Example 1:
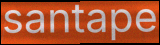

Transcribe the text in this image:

santape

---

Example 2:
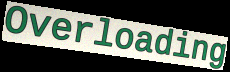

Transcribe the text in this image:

Overloading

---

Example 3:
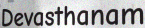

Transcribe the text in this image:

Devasthanam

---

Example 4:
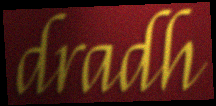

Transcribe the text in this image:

dradh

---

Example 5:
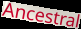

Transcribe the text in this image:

Ancestral